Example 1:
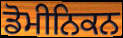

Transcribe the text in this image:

ਡੋਮੀਨਿਕਨ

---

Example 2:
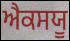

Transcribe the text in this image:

ਐਕਸਯੂ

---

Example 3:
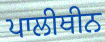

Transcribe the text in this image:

ਪਾਲੀਥੀਨ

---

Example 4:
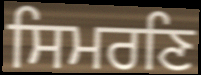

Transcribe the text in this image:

ਸਿਮਰਣਿ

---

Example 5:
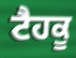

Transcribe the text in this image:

ਟੈਹਕੂ